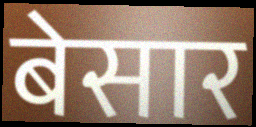
बेसार